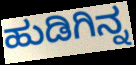
ಹುಡಿಗಿನ್ನ